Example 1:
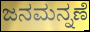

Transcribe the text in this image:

ಜನಮನ್ನಣೆ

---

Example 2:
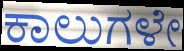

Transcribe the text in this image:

ಕಾಲುಗಳೇ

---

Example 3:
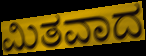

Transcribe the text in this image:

ಮಿತವಾದ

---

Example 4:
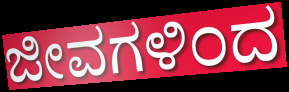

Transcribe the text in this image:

ಜೀವಗಳಿಂದ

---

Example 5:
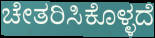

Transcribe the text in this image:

ಚೇತರಿಸಿಕೊಳ್ಳದೆ